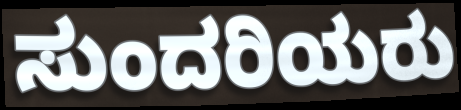
ಸುಂದರಿಯರು